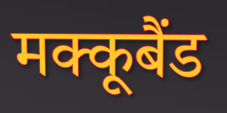
मक्कूबैंड